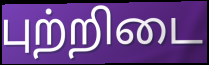
புற்றிடை